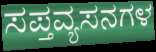
ಸಪ್ತವ್ಯಸನಗಳ